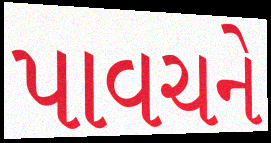
પાવચને